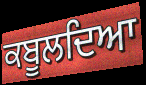
ਕਬੂਲਦਿਆ